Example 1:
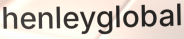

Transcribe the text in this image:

henleyglobal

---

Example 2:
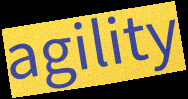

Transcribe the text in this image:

agility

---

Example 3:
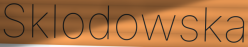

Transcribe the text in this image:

Sklodowska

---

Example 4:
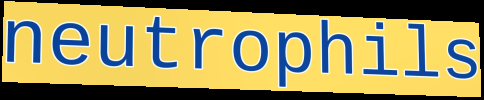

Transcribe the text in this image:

neutrophils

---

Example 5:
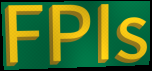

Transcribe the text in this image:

FPIs